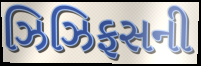
ઝિઝિફસની